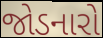
જોડનારો